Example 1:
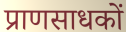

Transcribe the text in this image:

प्राणसाधकों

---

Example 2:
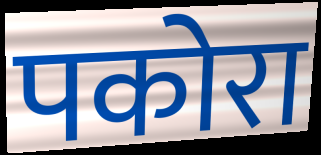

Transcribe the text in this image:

पकोरा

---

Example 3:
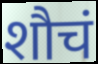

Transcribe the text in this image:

शौचं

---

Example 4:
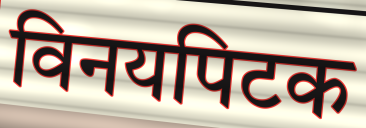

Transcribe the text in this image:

विनयपिटक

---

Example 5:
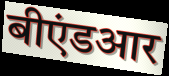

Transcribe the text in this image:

बीएंडआर